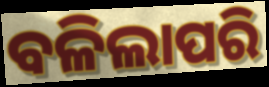
ବଳିଲାପରି